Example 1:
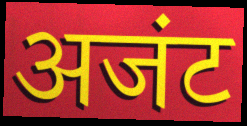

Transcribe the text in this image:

अजंट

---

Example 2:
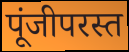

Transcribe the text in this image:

पूंजीपरस्त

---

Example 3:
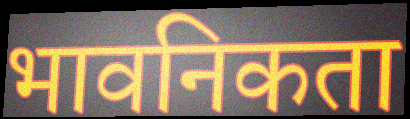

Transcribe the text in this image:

भावनिकता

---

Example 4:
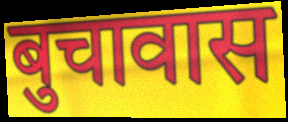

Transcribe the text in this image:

बुचावास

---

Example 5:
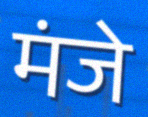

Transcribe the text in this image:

मंजे